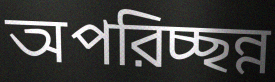
অপরিচ্ছন্ন